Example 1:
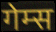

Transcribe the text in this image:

गेम्स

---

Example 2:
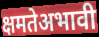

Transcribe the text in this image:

क्षमतेअभावी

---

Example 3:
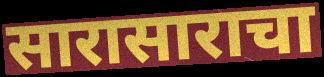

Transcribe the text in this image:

सारासाराचा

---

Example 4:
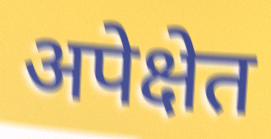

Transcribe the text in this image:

अपेक्षेत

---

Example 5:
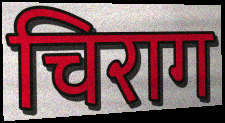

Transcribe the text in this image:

चिराग